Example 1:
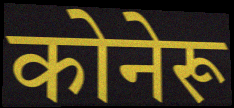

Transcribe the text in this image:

कोनेरू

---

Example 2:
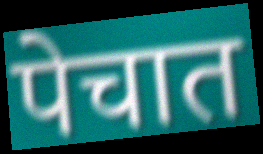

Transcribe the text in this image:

पेचात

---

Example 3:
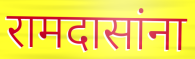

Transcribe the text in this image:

रामदासांना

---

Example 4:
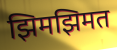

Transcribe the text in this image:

झिमझिमत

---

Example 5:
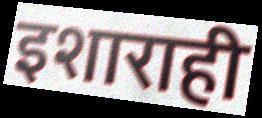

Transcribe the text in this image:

इशाराही